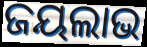
ଜୟଲାଭ